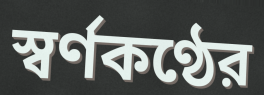
স্বর্ণকণ্ঠের